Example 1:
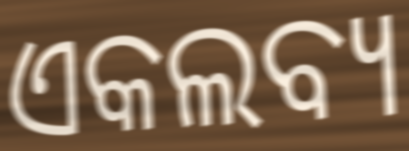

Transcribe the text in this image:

ଏକଲବ୍ୟ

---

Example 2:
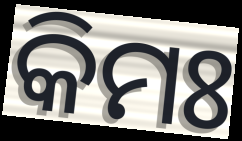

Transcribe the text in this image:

କିମଃ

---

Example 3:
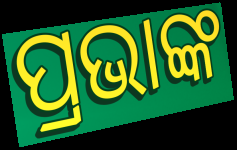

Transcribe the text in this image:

ପ୍ରଭାଙ୍କ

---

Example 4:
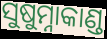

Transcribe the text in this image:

ସୁଷୁମ୍ନାକାଣ୍ଡ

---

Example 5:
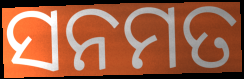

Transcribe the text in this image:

ସନମତ